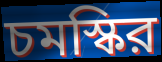
চমস্কির